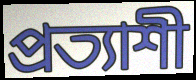
প্রত্যাশী